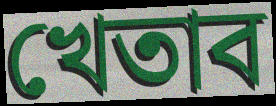
খেতাব